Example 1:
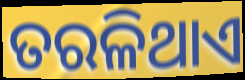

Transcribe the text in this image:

ତରଳିଥାଏ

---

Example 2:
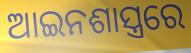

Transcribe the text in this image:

ଆଇନଶାସ୍ତ୍ରରେ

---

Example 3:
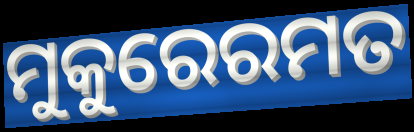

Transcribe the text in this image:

ମୁକୁରେରମତ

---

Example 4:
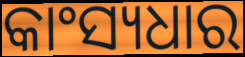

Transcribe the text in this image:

କାଂସ୍ୟଧାର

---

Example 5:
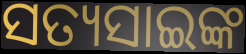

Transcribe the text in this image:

ସତ୍ୟସାଇଙ୍କ